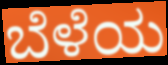
ಬೆಳೆಯ